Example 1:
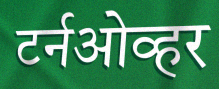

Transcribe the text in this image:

टर्नओव्हर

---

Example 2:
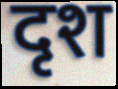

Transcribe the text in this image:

दृश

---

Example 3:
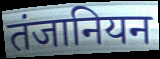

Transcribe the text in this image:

तंजानियन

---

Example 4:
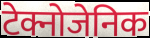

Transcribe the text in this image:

टेक्नोजेनिक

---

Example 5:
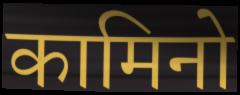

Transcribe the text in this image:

कामिनो